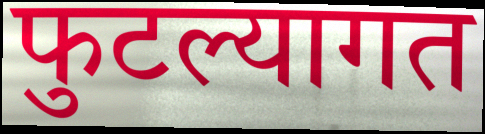
फुटल्यागत